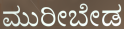
ಮುರೀಬೇಡ